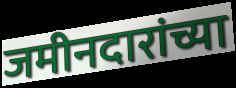
जमीनदारांच्या